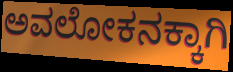
ಅವಲೋಕನಕ್ಕಾಗಿ